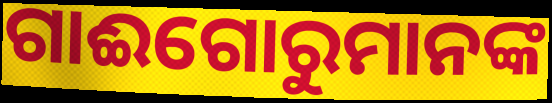
ଗାଈଗୋରୁମାନଙ୍କ